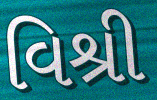
વિશ્રી